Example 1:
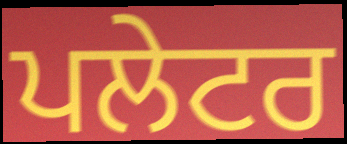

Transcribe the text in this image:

ਪਲੇਟਰ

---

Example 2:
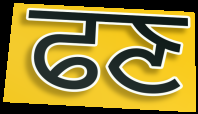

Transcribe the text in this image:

ਫਣ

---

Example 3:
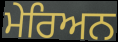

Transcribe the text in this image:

ਮੇਰਿਅਨ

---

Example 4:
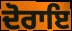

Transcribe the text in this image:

ਦੋਰਾਇ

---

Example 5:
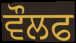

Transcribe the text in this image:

ਵੌਲਫ